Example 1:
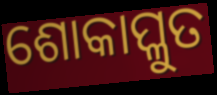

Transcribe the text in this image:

ଶୋକାପ୍ଳୁତ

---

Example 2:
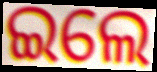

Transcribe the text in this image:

ଇଲେ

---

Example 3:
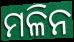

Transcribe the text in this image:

ମଳିନ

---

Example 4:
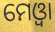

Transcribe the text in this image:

ମେଓ୍ୱା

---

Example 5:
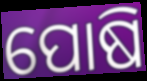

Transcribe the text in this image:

ପୋଷି